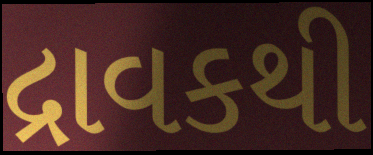
દ્રાવકથી